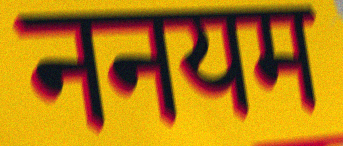
ननयम